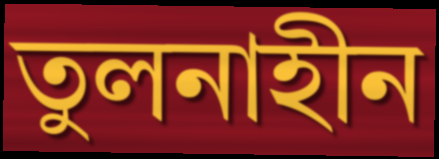
তুলনাহীন